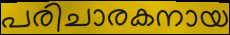
പരിചാരകനായ